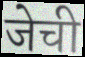
जेची